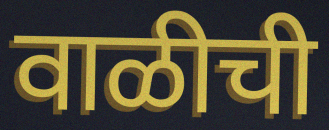
वाळीची